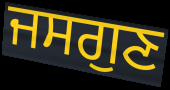
ਜਸਗੁਣ